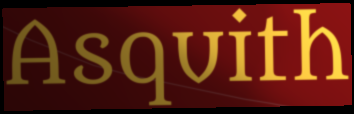
Asquith